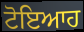
ਟੋਇਆਹ